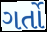
ગર્તો